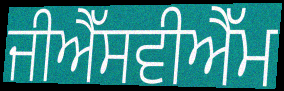
ਜੀਐੱਸਵੀਐੱਮ